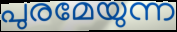
പുരമേയുന്ന